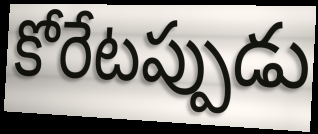
కోరేటప్పుడు